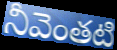
నీవెంతటి